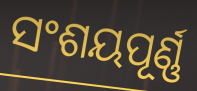
ସଂଶୟପୂର୍ଣ୍ଣ